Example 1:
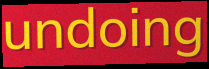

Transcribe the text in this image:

undoing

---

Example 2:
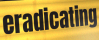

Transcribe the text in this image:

eradicating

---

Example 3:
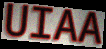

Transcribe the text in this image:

UIAA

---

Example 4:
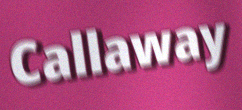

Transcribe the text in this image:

Callaway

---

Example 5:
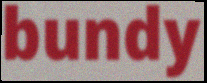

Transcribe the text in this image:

bundy